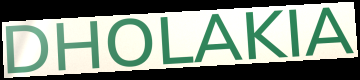
DHOLAKIA